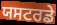
ਯਸਟਰਡੇ